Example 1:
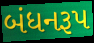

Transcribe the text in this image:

બંધનરૂપ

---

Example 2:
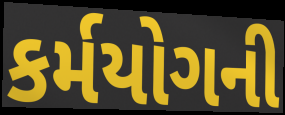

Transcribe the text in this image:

કર્મયોગની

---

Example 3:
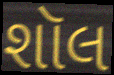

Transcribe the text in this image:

શૉલ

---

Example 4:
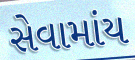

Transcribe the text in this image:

સેવામાંય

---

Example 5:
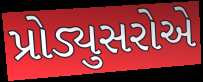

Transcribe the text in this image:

પ્રોડ્યુસરોએ